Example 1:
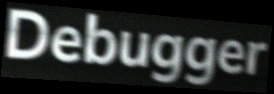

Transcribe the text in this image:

Debugger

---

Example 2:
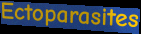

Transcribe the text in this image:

Ectoparasites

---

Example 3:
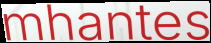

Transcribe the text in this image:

mhantes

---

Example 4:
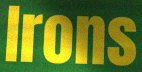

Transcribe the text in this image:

Irons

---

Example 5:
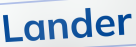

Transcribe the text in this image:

Lander